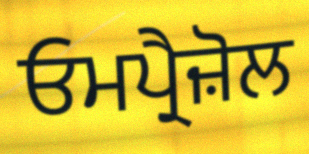
ਓਮਪ੍ਰੈਜ਼ੋਲ